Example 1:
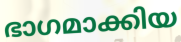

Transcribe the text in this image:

ഭാഗമാക്കിയ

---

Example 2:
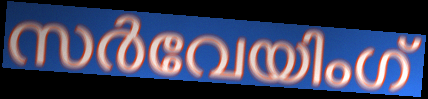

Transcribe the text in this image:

സർവേയിംഗ്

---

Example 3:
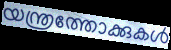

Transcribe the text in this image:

യന്ത്രത്തോക്കുകൾ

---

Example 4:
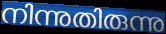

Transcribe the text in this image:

നിന്നുതിരുന്നു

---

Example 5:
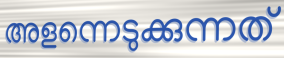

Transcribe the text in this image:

അളന്നെടുക്കുന്നത്